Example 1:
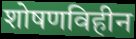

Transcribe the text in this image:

शोषणविहीन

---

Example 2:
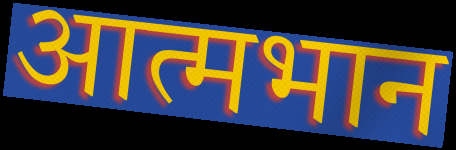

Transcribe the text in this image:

आत्मभान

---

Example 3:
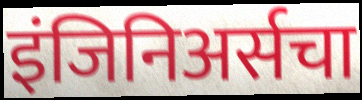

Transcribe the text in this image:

इंजिनिअर्सचा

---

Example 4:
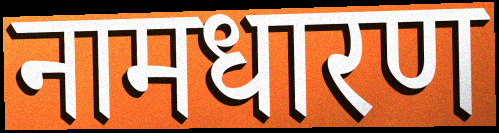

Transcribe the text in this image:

नामधारण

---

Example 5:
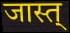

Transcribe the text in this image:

जास्त्